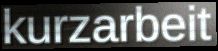
kurzarbeit